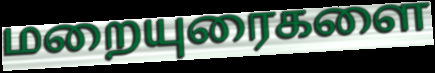
மறையுரைகளை